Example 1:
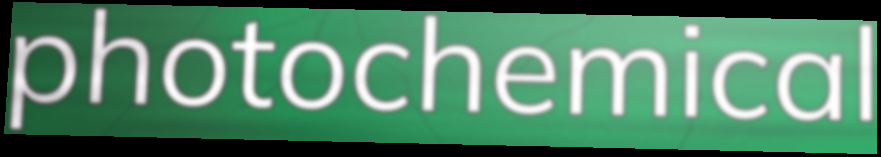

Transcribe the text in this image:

photochemical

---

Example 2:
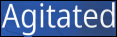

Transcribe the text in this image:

Agitated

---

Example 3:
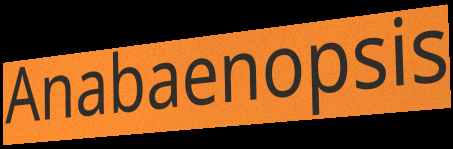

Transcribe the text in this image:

Anabaenopsis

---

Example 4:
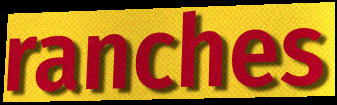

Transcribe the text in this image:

ranches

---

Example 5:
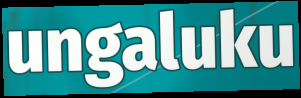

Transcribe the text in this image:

ungaluku